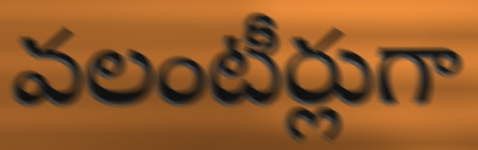
వలంటీర్లుగా